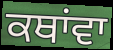
ਕਥਾਂਵਾ